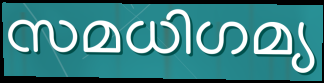
സമധിഗമ്യ